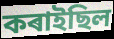
কৰাইছিল